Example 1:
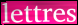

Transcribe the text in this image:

lettres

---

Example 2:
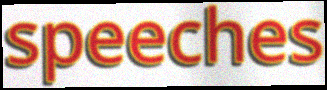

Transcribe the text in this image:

speeches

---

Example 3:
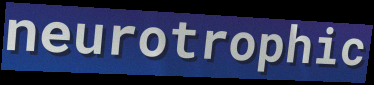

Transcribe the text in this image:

neurotrophic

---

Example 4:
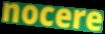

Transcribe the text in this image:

nocere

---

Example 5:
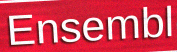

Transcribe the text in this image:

Ensembl